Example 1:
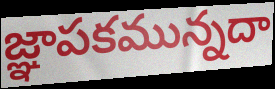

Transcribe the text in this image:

జ్ఞాపకమున్నదా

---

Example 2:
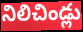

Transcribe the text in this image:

నిలిచిండ్లు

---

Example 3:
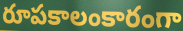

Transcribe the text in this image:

రూపకాలంకారంగా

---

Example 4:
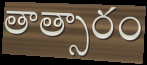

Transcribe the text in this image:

తాత్సారం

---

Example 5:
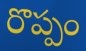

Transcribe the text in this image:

రొప్పం